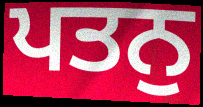
ਪਤਨੁ